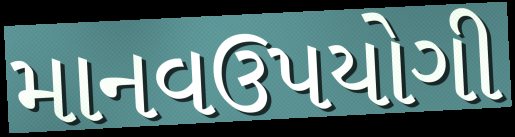
માનવઉપયોગી